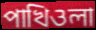
পাখিওলা